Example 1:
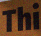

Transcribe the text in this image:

Thi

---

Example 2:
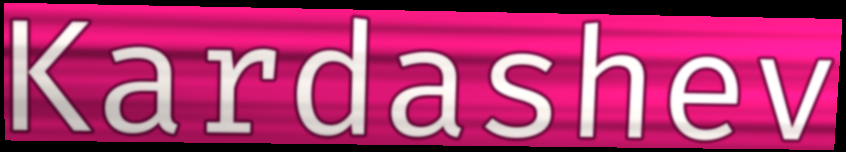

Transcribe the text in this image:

Kardashev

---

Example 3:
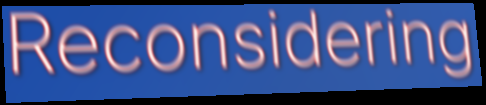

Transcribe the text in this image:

Reconsidering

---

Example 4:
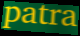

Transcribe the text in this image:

patra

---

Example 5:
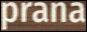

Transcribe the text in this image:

prana